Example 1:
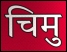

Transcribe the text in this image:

चिमु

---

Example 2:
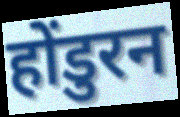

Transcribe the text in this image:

होंडुरन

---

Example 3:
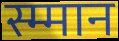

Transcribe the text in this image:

स्म्मान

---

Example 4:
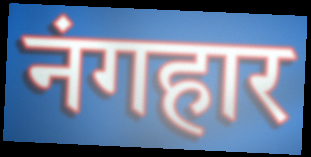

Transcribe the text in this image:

नंगहार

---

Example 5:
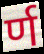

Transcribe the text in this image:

र्ण